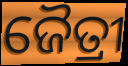
ଜୈତ୍ରୀ